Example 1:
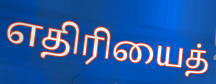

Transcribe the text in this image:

எதிரியைத்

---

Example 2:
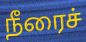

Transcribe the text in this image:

நீரைச்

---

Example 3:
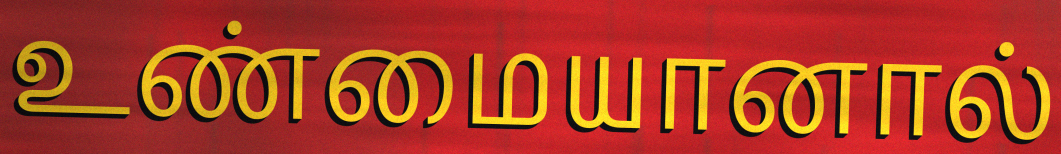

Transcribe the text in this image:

உண்மையானால்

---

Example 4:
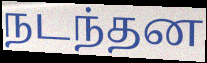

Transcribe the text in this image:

நடந்தன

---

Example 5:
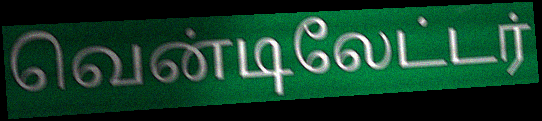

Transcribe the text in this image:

வென்டிலேட்டர்